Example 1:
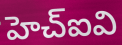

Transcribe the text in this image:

హెచ్ఐవి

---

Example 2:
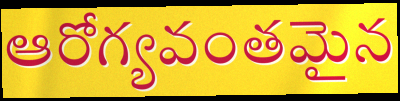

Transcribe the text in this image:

ఆరోగ్యవంతమైన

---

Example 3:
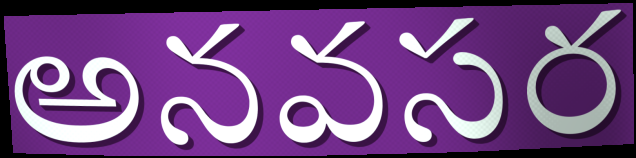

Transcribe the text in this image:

అనవసర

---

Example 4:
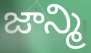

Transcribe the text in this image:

జాన్మి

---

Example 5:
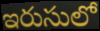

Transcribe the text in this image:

ఇరుసులో